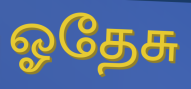
ஓதேசு